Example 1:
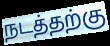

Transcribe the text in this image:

நடத்தற்கு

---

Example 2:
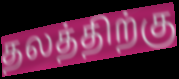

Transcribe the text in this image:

தலத்திற்கு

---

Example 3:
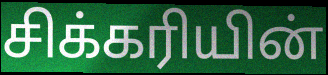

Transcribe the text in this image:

சிக்கரியின்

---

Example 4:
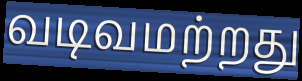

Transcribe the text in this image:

வடிவமற்றது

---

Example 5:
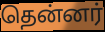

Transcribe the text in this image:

தென்னர்